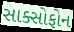
સાક્સોફોન